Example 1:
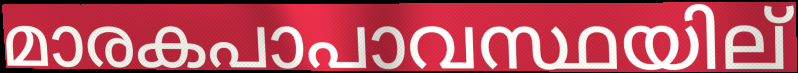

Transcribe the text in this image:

മാരകപാപാവസ്ഥയില്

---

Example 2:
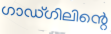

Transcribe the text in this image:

ഗാഡ്ഗിലിന്റെ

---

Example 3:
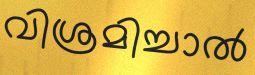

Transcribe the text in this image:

വിശ്രമിച്ചാൽ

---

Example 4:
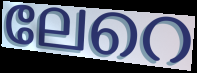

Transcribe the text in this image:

ലേറെ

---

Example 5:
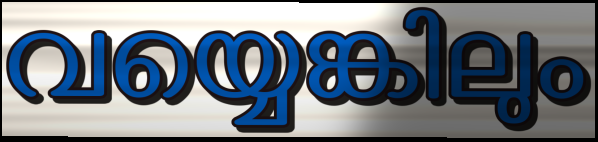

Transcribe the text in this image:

വയ്യെങ്കിലും